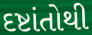
દષ્ટાંતોથી